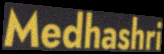
Medhashri